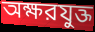
অক্ষরযুক্ত